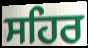
ਸਹਿਰ